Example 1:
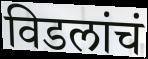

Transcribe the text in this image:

विडलांचं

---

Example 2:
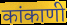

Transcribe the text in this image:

कांकाणी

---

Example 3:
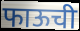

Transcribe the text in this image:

फाऊची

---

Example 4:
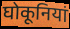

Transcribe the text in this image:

घोकूनियां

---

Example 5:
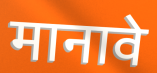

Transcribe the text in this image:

मानावे